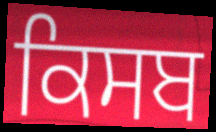
ਕਿਸਬ